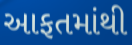
આફતમાંથી